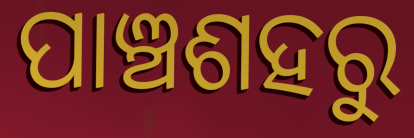
ପାଞ୍ଚଶହରୁ